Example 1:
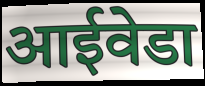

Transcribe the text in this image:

आईवेडा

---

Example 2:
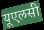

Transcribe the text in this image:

यूएलसी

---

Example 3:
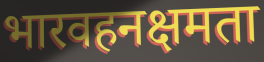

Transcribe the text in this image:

भारवहनक्षमता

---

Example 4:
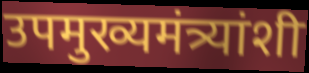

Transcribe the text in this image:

उपमुख्यमंत्र्यांशी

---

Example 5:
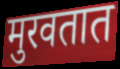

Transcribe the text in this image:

मुरवतात